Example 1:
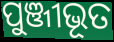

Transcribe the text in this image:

ପୁଞ୍ଜୀଭୂତ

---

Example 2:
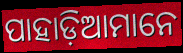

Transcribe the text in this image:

ପାହାଡ଼ିଆମାନେ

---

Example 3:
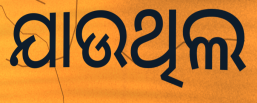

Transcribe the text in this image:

ଯାଉଥିଲ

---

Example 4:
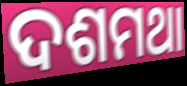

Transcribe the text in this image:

ଦଶମଥା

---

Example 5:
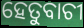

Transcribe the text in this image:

ହେତୁବାଚୀ